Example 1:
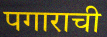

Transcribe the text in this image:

पगाराची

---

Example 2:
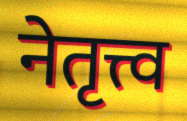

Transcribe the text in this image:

नेतृत्त्व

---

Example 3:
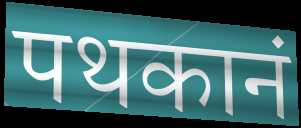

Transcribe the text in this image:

पथकानं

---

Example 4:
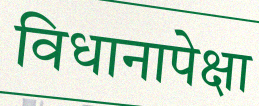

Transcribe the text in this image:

विधानापेक्षा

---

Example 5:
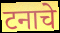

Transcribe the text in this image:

टनाचे